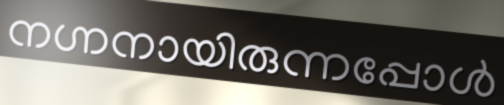
നഗ്നനായിരുന്നപ്പോൾ